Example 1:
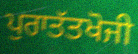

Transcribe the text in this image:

ਪੁਰਾਤੱਤਖੋਜੀ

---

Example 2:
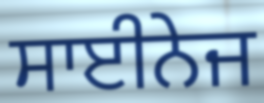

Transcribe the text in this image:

ਸਾਈਨੇਜ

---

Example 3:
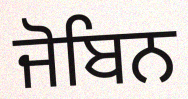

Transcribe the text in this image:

ਜੋਬਿਨ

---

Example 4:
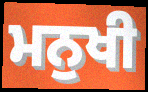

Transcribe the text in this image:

ਮਨੁਖੀ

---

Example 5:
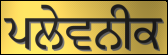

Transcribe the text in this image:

ਪਲੇਵਨੀਕ